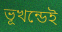
ভূখন্ডেই